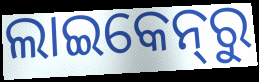
ଲାଇକେନ୍‌ରୁ